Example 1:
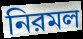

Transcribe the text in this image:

নিরমল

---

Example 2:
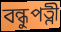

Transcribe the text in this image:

বন্ধুপত্নী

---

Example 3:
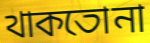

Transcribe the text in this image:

থাকতোনা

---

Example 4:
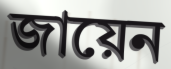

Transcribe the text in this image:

জায়েন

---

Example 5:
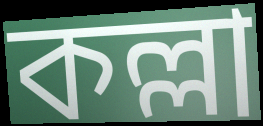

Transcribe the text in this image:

কল্লা